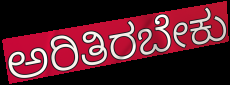
ಅರಿತಿರಬೇಕು